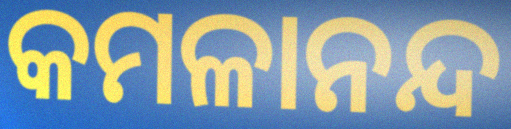
କମଳାନନ୍ଦ